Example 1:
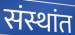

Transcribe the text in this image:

संस्थांत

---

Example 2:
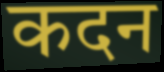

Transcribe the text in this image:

कदन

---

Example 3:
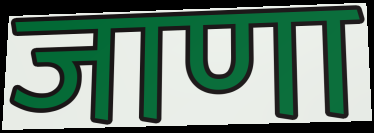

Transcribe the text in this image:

जाणा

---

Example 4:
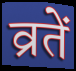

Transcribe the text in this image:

व्रतें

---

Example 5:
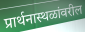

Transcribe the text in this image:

प्रार्थनास्थळांवरील